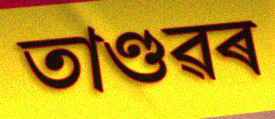
তাণ্ডৱৰ